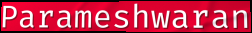
Parameshwaran